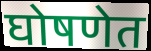
घोषणेत